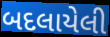
બદલાયેલી